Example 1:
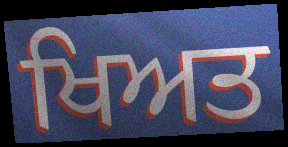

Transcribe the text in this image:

ਖਿਅਤ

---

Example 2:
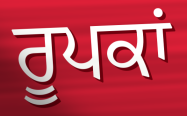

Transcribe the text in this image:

ਰੂਪਕਾਂ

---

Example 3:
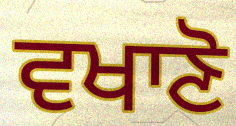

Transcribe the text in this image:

ਵਖਾਣੋ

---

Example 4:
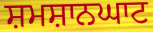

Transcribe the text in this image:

ਸ਼ਮਸ਼ਾਨਘਾਟ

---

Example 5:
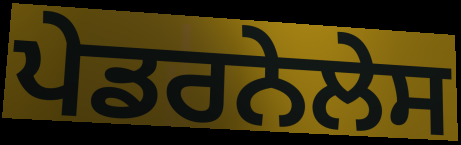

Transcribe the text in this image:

ਪੇਡਰਨੇਲੇਸ